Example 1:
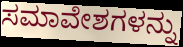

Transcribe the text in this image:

ಸಮಾವೇಶಗಳನ್ನು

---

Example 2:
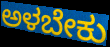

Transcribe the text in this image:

ಅಳಬೇಕು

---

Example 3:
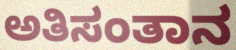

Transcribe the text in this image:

ಅತಿಸಂತಾನ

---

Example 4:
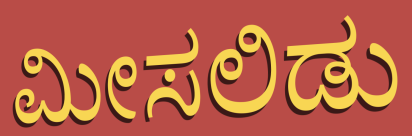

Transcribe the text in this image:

ಮೀಸಲಿಡು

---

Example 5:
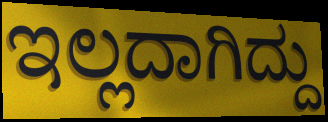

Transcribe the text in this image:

ಇಲ್ಲದಾಗಿದ್ದು